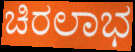
ಚಿರಲಾಭ